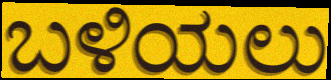
ಬಳಿಯಲು